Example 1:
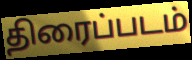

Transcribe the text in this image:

திரைப்படம்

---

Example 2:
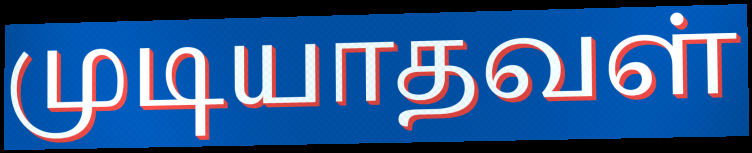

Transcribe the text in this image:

முடியாதவள்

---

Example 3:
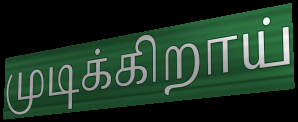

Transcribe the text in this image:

முடிக்கிறாய்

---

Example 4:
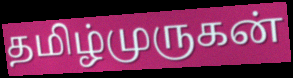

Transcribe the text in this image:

தமிழ்முருகன்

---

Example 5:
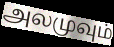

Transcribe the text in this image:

அலமுவும்